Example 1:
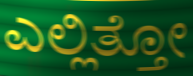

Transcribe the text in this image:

ಎಲ್ಲಿತ್ತೋ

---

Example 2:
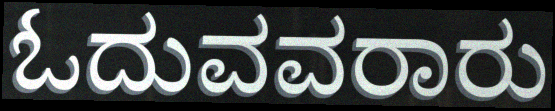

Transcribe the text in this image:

ಓದುವವರಾರು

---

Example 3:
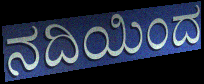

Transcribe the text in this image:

ನದಿಯಿಂದ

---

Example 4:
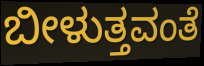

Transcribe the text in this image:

ಬೀಳುತ್ತವಂತೆ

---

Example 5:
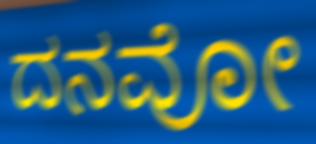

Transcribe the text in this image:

ದನವೋ